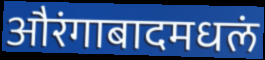
औरंगाबादमधलं